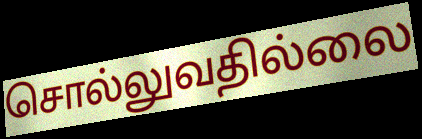
சொல்லுவதில்லை